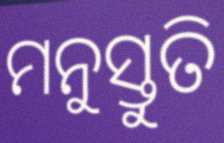
ମନୁସ୍ତୁତି